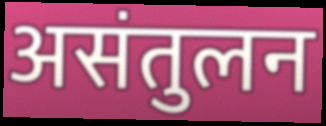
असंतुलन